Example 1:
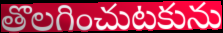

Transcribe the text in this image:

తొలగించుటకును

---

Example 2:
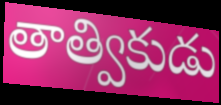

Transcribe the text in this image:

తాత్వికుడు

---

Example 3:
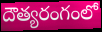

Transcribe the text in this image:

దౌత్యరంగంలో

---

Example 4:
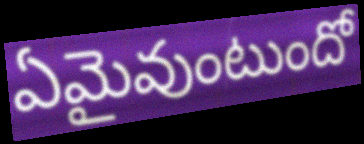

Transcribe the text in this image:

ఏమైవుంటుందో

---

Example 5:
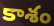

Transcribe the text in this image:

కాశం